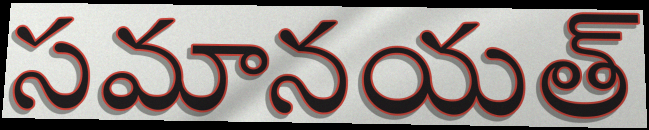
సమానయత్